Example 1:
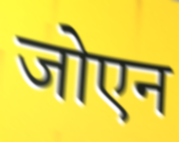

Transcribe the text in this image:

जोएन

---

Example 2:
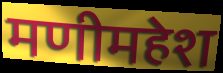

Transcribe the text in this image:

मणीमहेश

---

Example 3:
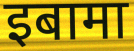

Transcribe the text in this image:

इबामा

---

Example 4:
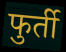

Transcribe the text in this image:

फुर्ती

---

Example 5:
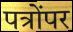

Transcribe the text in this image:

पत्रोंपर